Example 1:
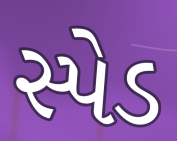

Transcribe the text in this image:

સ્પેડ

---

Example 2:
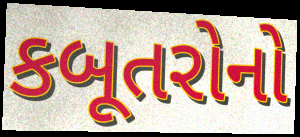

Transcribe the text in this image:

કબૂતરોનો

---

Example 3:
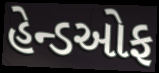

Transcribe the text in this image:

હેન્ડઓફ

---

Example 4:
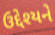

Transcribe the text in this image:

ઉદ્દેશ્યને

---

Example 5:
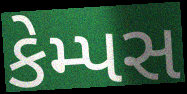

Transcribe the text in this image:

કેમ્પસ